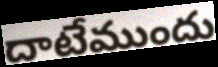
దాటేముందు